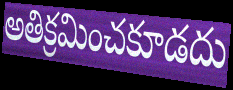
అతిక్రమించకూడదు